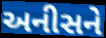
અનીસને